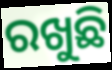
ରଖୁଛି